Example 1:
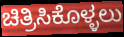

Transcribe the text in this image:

ಚಿತ್ರಿಸಿಕೊಳ್ಳಲು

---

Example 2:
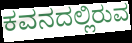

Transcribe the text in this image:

ಕವನದಲ್ಲಿರುವ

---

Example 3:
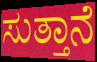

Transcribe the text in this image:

ಸುತ್ತಾನೆ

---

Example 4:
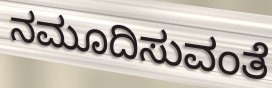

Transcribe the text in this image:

ನಮೂದಿಸುವಂತೆ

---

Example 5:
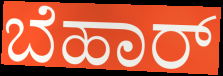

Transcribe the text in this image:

ಬೆಹಾರ್